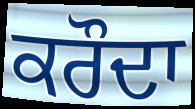
ਕਰੌਦਾ